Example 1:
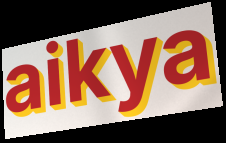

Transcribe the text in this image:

aikya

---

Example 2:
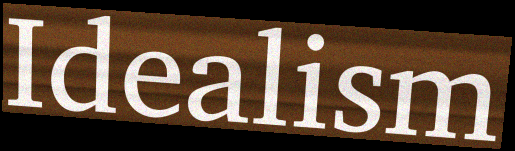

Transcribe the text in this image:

Idealism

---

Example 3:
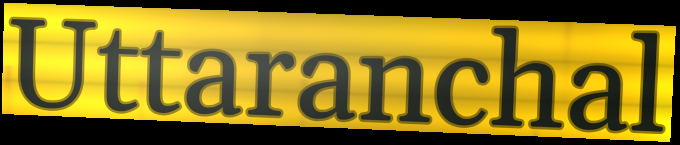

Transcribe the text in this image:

Uttaranchal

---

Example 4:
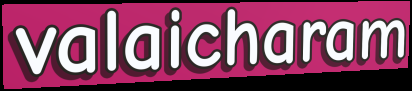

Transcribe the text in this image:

valaicharam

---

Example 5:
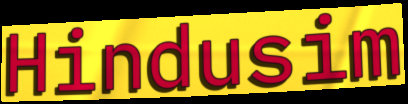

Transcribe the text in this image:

Hindusim